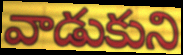
వాడుకుని